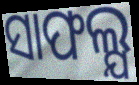
ସାଫଲ୍ଯ